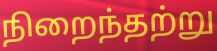
நிறைந்தற்று